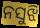
ନସୁଝି